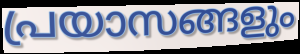
പ്രയാസങ്ങളും